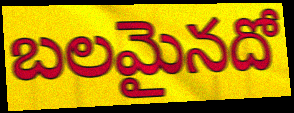
బలమైనదో